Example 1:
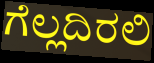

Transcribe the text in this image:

ಗೆಲ್ಲದಿರಲಿ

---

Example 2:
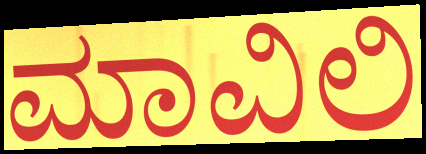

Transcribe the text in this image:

ಮಾವಿಲಿ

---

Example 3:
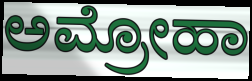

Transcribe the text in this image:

ಅಮ್ರೋಹಾ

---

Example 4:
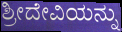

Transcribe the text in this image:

ಶ್ರೀದೇವಿಯನ್ನು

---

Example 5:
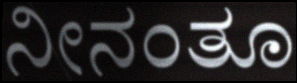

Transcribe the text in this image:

ನೀನಂತೂ